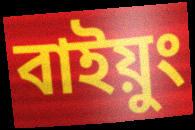
বাইয়ুং